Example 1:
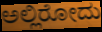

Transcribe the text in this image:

ಅಲ್ಲಿರೋದು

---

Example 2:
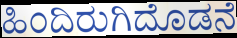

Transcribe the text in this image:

ಹಿಂದಿರುಗಿದೊಡನೆ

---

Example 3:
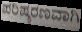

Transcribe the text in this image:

ಪರಿಷ್ಕರಣವಾಗಿ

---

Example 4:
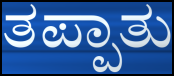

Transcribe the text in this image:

ತಪ್ಪಾತು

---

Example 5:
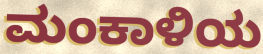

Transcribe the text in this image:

ಮಂಕಾಳಿಯ